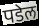
पडेल